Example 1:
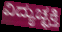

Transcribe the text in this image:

ವಿದ್ಯುಚ್ಛಕ್ತಿ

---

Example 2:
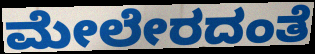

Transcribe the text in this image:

ಮೇಲೇರದಂತೆ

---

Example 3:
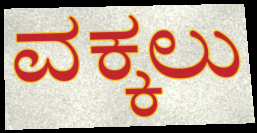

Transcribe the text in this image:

ವಕ್ಕಲು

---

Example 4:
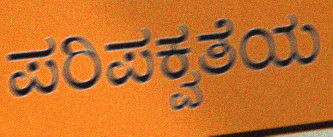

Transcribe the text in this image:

ಪರಿಪಕ್ವತೆಯ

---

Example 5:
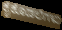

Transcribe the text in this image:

ಕೈಕೊಡಲಿಗಳು